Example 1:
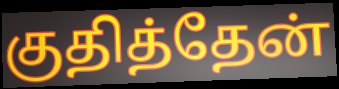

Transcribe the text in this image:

குதித்தேன்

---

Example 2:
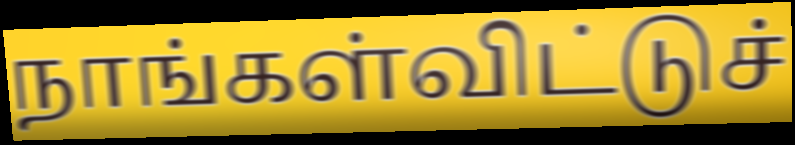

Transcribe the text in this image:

நாங்கள்விட்டுச்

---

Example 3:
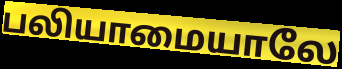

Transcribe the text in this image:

பலியாமையாலே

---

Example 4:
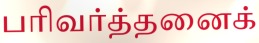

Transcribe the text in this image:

பரிவர்த்தனைக்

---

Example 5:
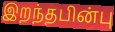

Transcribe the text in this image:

இறந்தபின்பு